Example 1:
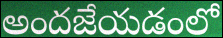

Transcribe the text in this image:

అందజేయడంలో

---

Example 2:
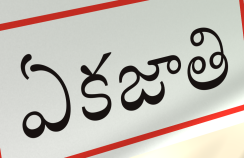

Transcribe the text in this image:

ఏకజాతి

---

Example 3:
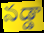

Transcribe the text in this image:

నడ్డా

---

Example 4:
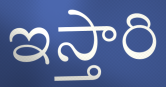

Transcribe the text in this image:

ఇస్తారి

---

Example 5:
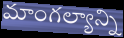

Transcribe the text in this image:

మాంగల్యాన్ని